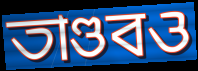
তাণ্ডবও